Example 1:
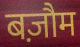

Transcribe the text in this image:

बज़ौम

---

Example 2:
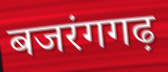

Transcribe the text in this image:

बजरंगगढ़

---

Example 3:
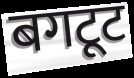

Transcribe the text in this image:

बगटूट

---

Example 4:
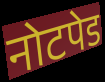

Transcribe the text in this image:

नोटपेड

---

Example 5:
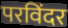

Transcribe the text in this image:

परविंदर